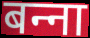
बन्ना